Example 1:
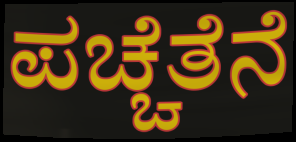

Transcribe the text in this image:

ಪಚ್ಚೆತೆನೆ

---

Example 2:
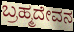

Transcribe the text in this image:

ಬ್ರಹ್ಮದೇವನ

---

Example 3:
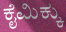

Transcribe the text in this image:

ಕೈಮಿಕ್ಕು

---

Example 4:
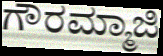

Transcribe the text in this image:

ಗೌರಮ್ಮಾಜಿ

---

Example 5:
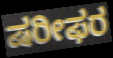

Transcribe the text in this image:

ಷರೀಫರ